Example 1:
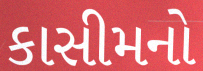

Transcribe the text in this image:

કાસીમનો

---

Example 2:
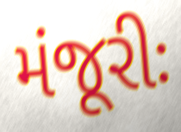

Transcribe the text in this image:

મંજૂરીઃ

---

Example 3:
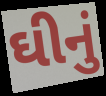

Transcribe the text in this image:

ઘીનું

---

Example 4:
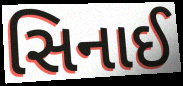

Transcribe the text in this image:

સિનાઈ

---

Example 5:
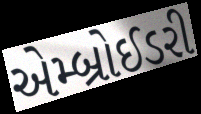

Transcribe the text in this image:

એમ્બ્રોઈડરી